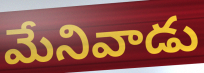
మేనివాడు